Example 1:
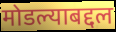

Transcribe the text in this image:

मोडल्याबद्दल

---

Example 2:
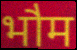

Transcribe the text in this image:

भौम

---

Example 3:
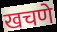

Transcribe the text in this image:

खचणे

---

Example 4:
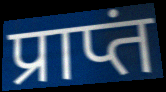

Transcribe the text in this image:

प्राप्तं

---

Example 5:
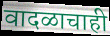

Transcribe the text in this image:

वादळाचाही